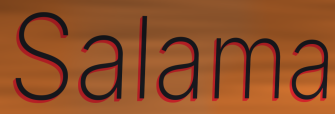
Salama